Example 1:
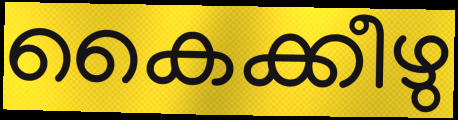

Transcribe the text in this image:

കൈക്കീഴു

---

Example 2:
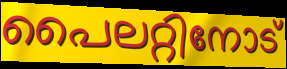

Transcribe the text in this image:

പൈലറ്റിനോട്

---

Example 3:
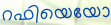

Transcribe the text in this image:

റഫിയെയോ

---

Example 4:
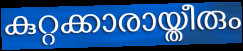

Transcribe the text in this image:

കുറ്റക്കാരായ്തീരും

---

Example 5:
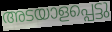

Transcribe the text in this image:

അടയാളപ്പെട്ടു